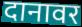
दानावर